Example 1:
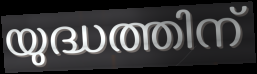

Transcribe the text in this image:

യുദ്ധത്തിന്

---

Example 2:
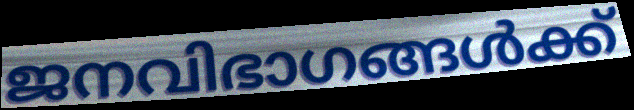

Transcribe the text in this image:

ജനവിഭാഗങ്ങൾക്ക്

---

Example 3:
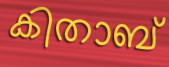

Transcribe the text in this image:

കിതാബ്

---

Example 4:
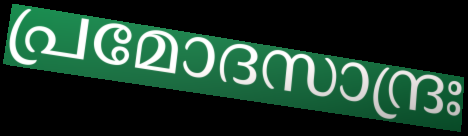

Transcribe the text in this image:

പ്രമോദസാന്ദ്രഃ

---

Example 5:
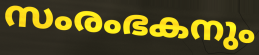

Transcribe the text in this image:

സംരംഭകനും